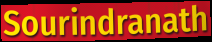
Sourindranath